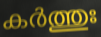
കർത്തുഃ